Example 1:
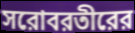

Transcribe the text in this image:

সরোবরতীরের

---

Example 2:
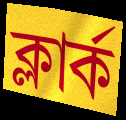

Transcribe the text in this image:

ক্লার্ক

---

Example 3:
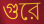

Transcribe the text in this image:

গুরে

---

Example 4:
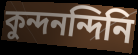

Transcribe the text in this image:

কুন্দনন্দিনি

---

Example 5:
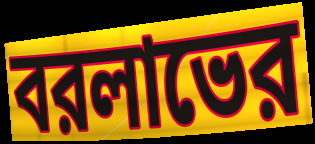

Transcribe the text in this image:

বরলাভের